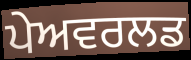
ਪੇਅਵਰਲਡ